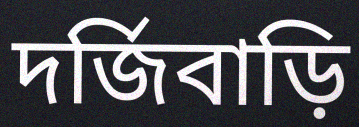
দর্জিবাড়ি